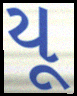
યૂ